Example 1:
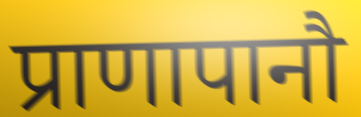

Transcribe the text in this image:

प्राणापानौ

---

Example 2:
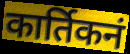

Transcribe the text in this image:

कार्तिकनं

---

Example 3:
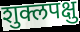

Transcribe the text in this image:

शुक्लपक्षु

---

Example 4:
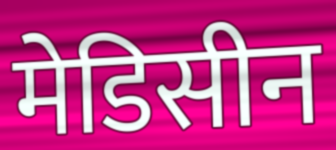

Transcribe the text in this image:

मेडिसीन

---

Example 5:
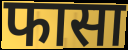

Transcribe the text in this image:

फासा